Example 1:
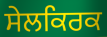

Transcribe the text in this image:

ਸੇਲਕਿਰਕ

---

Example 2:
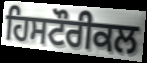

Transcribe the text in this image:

ਹਿਸਟੌਰੀਕਲ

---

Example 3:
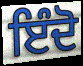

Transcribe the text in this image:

ਇੰਦੋ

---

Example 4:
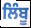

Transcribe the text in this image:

ਲਿੰਬੂ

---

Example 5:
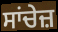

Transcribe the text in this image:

ਸਾਂਚੇਜ਼